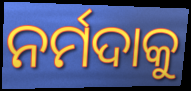
ନର୍ମଦାକୁ